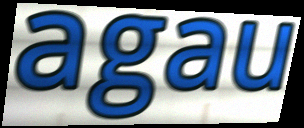
agau